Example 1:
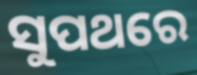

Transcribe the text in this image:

ସୁପଥରେ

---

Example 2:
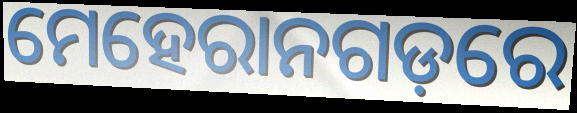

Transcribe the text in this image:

ମେହେରାନଗଡ଼ରେ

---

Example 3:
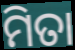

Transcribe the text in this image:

ମିତା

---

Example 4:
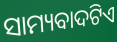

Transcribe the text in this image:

ସାମ୍ୟବାଦଟିଏ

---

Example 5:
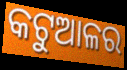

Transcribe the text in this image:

କଟୁଆଳର